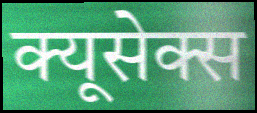
क्यूसेक्स